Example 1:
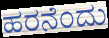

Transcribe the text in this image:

ಹರನೆಂದು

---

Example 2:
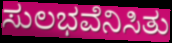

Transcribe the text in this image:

ಸುಲಭವೆನಿಸಿತು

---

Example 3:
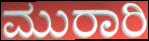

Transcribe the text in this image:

ಮುರಾರಿ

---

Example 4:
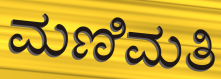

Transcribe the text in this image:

ಮಣಿಮತಿ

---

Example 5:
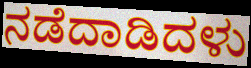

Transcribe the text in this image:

ನಡೆದಾಡಿದಳು